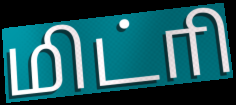
மிட்ரி